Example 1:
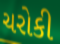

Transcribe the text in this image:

ચરોકી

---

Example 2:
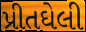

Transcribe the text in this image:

પ્રીતઘેલી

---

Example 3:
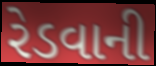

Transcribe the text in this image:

રેડવાની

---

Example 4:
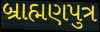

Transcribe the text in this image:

બ્રાહ્મણપુત્ર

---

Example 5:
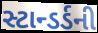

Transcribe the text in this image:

સ્ટાન્ડર્ડની